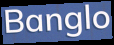
Banglo